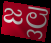
జల్లె